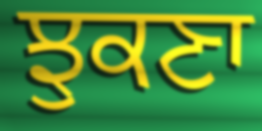
ਝੁਕਣਾ